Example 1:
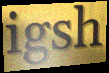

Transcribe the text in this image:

igsh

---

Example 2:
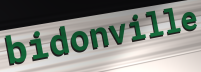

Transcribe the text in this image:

bidonville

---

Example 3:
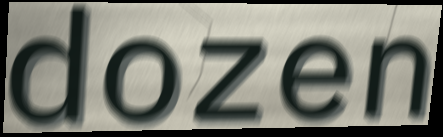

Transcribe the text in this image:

dozen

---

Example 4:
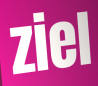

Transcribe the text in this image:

ziel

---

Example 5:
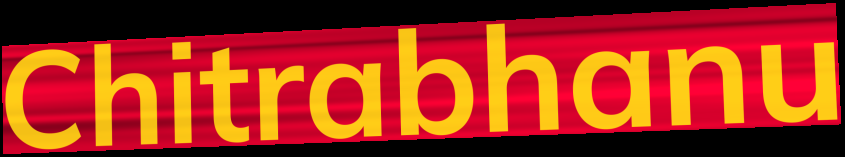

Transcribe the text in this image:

Chitrabhanu